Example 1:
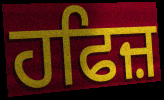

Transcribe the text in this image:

ਹਫਿਜ਼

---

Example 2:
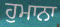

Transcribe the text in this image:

ਹੁਮਾਨਾ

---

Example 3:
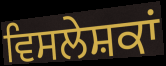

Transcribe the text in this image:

ਵਿਸਲੇਸ਼ਕਾਂ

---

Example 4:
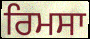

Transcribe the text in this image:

ਰਿਮਸਾ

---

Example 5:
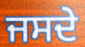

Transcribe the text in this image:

ਜਸਦੇ